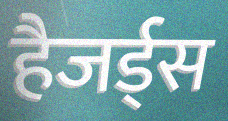
हैजर्ड्स